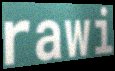
rawi